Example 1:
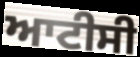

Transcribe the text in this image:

ਆਟੀਸੀ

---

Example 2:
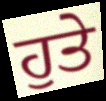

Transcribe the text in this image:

ਹੁਤੇ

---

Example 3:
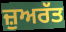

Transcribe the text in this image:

ਜ਼ੁਅਰੱਤ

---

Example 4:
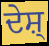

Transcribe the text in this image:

ਦੇਸ਼੍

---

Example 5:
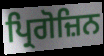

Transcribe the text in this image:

ਪ੍ਰਿਗੋਜ਼ਿਨ